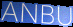
ANBU